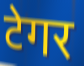
टेगर